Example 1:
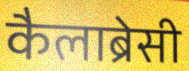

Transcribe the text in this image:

कैलाब्रेसी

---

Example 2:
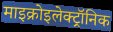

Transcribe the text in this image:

माइक्रोइलेक्ट्रॉनिक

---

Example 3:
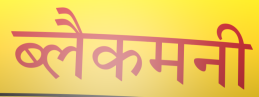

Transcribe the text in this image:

ब्लैकमनी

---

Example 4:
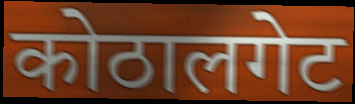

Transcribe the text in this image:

कोठालगेट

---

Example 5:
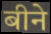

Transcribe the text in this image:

बीने